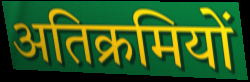
अतिक्रमियों